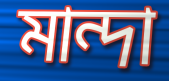
মান্দা